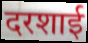
दरशाई